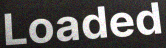
Loaded